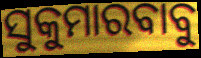
ସୁକୁମାରବାବୁ